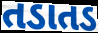
તડાતડ